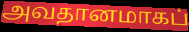
அவதானமாகப்